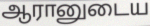
ஆரானுடைய